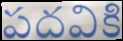
పదవికి